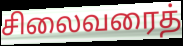
சிலைவரைத்